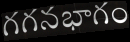
గగనభాగం